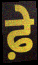
ਫ਼ੇ